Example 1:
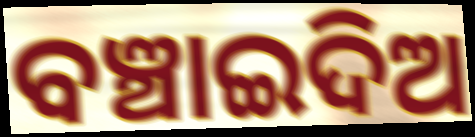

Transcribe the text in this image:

ବଞ୍ଚାଇଦିଅ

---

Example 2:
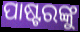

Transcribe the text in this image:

ପାଷ୍ଟରଙ୍କୁ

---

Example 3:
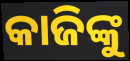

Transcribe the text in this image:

କାଜିଙ୍କୁ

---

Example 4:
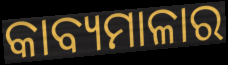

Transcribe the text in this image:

କାବ୍ୟମାଳାର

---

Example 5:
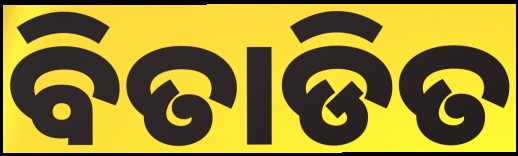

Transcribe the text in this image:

ବିତାଡିତ